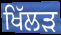
ਖਿੱਲੜ